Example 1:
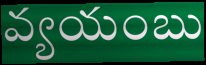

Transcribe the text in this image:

వ్యయంబు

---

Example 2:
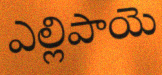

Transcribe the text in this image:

ఎల్లిపాయె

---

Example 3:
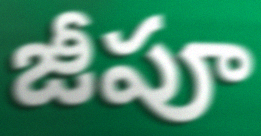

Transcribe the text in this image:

జీపూ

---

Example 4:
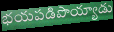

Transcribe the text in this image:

భయపడిపొయ్యాడు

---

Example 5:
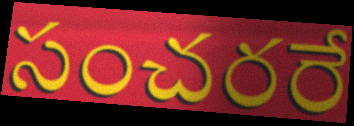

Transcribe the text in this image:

సంచరరే